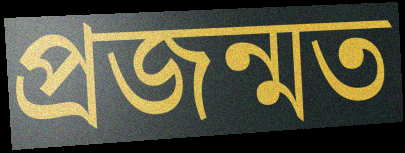
প্ৰজন্মত